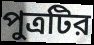
পুত্রটির